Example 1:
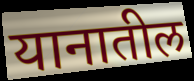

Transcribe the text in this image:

यानातील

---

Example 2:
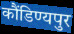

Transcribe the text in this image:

कौंडिण्यपुर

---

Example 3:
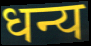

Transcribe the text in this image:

धन्य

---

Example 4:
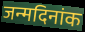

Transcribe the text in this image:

जन्मदिनांक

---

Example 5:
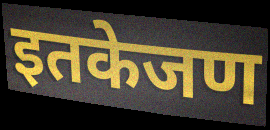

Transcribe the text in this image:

इतकेजण